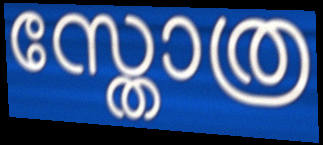
സ്തോത്ര